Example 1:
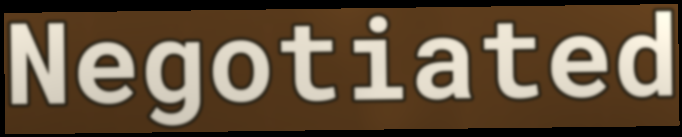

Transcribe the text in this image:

Negotiated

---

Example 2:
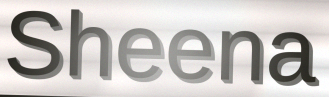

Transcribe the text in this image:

Sheena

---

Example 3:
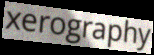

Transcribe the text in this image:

xerography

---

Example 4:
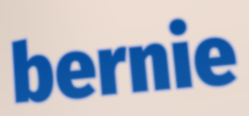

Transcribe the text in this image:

bernie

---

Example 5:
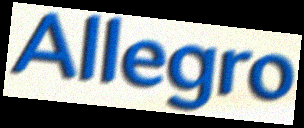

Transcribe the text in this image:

Allegro